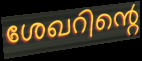
ശേഖറിന്റെ